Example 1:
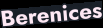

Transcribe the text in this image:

Berenices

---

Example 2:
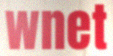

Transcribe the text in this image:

wnet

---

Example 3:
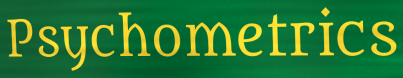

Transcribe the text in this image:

Psychometrics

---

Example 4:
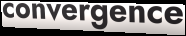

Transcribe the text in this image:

convergence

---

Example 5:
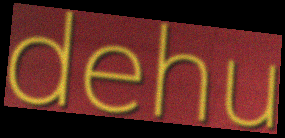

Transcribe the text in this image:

dehu